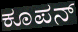
ಕೂಪನ್